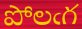
పోలఁగ